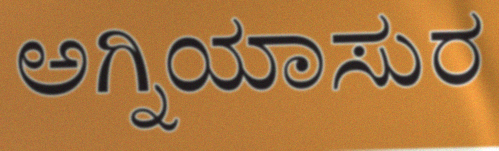
ಅಗ್ನಿಯಾಸುರ